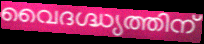
വൈദഗ്ദ്ധ്യത്തിന്